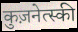
कुज़नेत्स्की